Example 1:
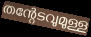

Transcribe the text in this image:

തന്റേടവുമുള്ള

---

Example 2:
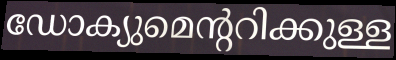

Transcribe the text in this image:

ഡോക്യുമെന്ററിക്കുള്ള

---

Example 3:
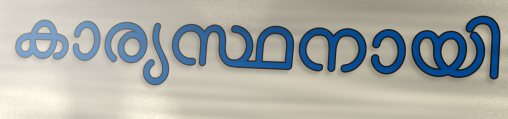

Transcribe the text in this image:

കാര്യസ്ഥനായി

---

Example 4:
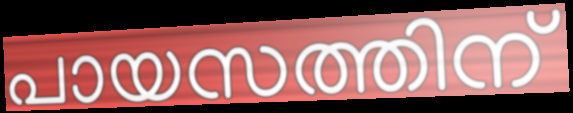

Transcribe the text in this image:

പായസത്തിന്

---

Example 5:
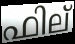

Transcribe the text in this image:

ഫില്